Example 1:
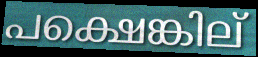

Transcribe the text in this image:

പക്ഷെങ്കില്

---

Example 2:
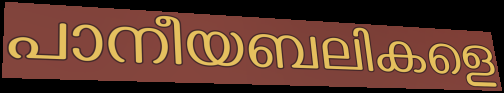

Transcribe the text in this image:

പാനീയബലികളെ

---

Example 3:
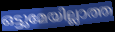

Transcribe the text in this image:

ഒട്ടുമേയില്ലാത്ത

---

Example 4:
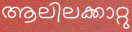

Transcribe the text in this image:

ആലിലക്കാറ്റു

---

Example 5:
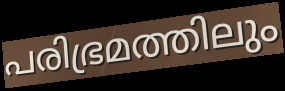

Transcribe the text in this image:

പരിഭ്രമത്തിലും